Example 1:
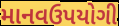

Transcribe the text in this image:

માનવઉપયોગી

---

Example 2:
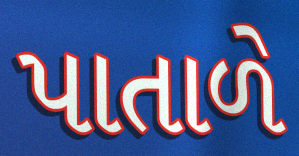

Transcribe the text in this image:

પાતાળે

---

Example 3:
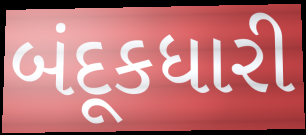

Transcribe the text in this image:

બંદૂકધારી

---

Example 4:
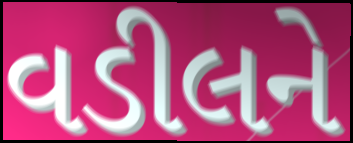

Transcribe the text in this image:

વડીલને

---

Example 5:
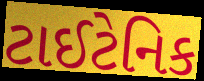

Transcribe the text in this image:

ટાઈટેનિક